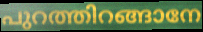
പുറത്തിറങ്ങാനേ